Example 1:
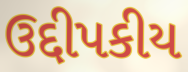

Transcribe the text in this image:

ઉદ્દીપકીય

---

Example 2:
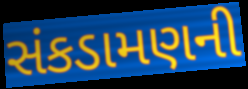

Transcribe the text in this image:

સંકડામણની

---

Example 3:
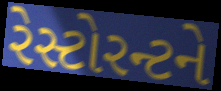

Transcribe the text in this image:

રેસ્ટોરન્ટને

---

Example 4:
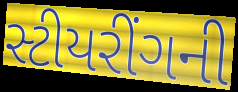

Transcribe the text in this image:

સ્ટીયરીંગની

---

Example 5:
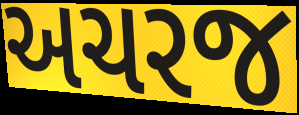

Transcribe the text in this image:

અચરજ